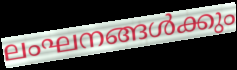
ലംഘനങ്ങൾക്കും